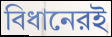
বিধানেরই